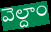
వెల్దాం